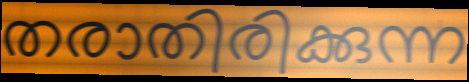
തരാതിരിക്കുന്ന